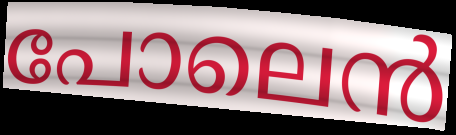
പോലെൻ